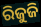
ରିଜୁଜି